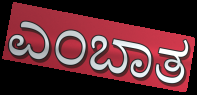
ಎಂಬಾತ